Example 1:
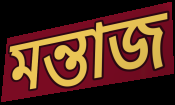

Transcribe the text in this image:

মন্তাজ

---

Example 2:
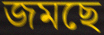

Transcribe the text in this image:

জমছে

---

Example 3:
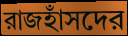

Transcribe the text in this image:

রাজহাঁসদের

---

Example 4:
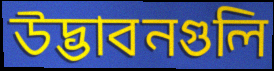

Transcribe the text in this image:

উদ্ভাবনগুলি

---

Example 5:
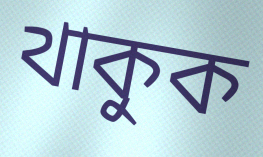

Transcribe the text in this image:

থাকুক